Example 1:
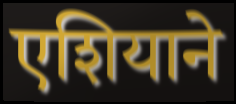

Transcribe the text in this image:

एशियाने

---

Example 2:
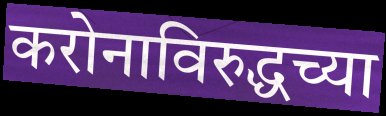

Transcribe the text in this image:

करोनाविरुद्धच्या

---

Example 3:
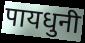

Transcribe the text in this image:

पायधुनी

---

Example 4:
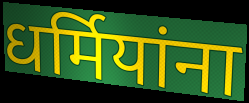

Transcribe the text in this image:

धर्मियांना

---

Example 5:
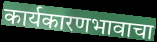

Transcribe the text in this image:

कार्यकारणभावाचा